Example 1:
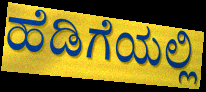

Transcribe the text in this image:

ಹೆಡಿಗೆಯಲ್ಲಿ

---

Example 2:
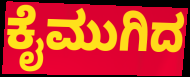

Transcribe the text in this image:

ಕೈಮುಗಿದ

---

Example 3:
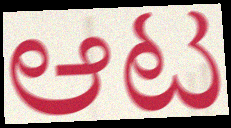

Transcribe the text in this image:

ಆಟ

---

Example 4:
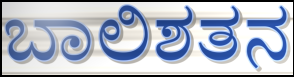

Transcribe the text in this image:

ಬಾಲಿಶತನ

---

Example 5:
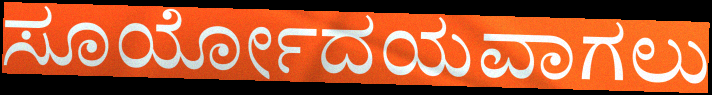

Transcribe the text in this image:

ಸೂರ್ಯೋದಯವಾಗಲು